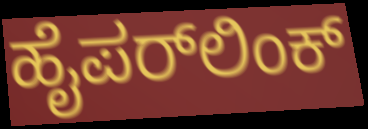
ಹೈಪರ್‌ಲಿಂಕ್